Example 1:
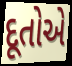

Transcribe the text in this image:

દૂતોએ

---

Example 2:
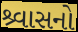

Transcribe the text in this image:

શ્ર્વાસનો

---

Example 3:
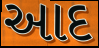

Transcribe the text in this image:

આદ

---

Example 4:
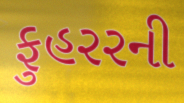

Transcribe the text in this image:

ફુહરરની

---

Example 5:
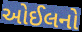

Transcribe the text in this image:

ઓઈલનો